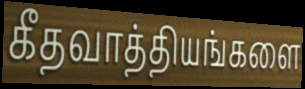
கீதவாத்தியங்களை